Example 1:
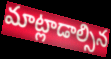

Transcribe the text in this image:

మాట్లాడాల్సిన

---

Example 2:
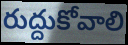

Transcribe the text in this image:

రుద్దుకోవాలి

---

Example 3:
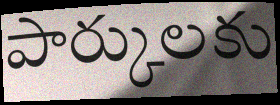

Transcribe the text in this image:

పార్కులకు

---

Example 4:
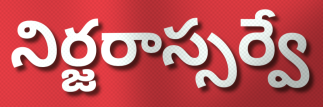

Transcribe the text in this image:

నిర్జరాస్సర్వే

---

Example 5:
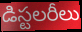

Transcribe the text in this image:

డిస్టలరీలు